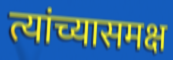
त्यांच्यासमक्ष